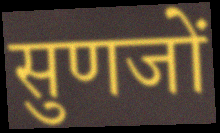
सुणजों